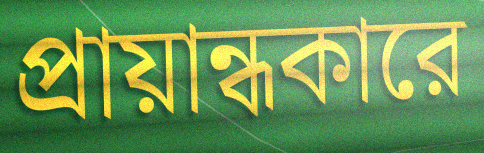
প্রায়ান্ধকারে